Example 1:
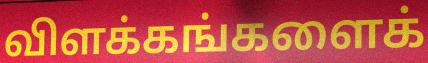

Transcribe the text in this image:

விளக்கங்களைக்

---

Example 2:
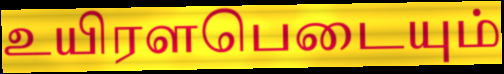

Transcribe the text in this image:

உயிரளபெடையும்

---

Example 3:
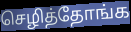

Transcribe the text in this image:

செழித்தோங்க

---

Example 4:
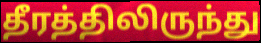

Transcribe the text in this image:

தீரத்திலிருந்து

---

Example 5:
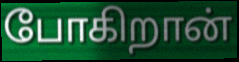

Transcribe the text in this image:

போகிறான்